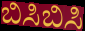
ಬಿಸಿಬಿಸಿ